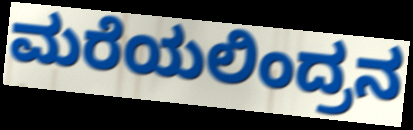
ಮರೆಯಲಿಂದ್ರನ